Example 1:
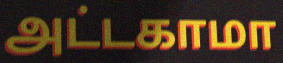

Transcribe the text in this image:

அட்டகாமா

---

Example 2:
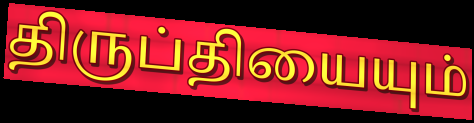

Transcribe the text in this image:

திருப்தியையும்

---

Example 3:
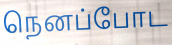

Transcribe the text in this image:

நெனப்போட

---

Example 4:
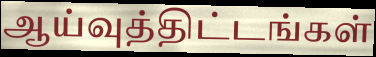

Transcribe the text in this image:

ஆய்வுத்திட்டங்கள்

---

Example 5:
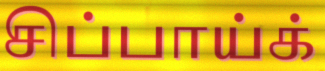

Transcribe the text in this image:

சிப்பாய்க்